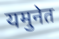
यमुनेत